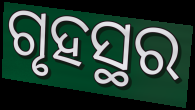
ଗୃହସ୍ଥର